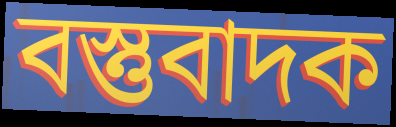
বস্তুবাদক